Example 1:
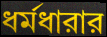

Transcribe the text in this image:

ধর্মধারার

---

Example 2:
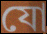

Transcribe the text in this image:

যো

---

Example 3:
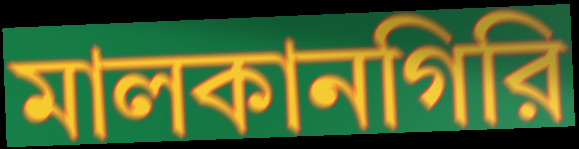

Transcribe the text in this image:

মালকানগিরি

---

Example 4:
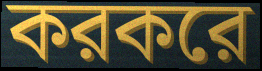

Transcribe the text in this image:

করকরে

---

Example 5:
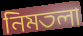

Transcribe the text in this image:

নিমতলা